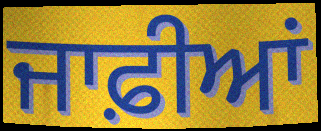
ਜਾਫ਼ੀਆਂ